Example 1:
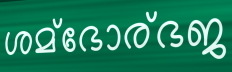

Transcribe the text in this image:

ശമ്ഭോര്ഭജ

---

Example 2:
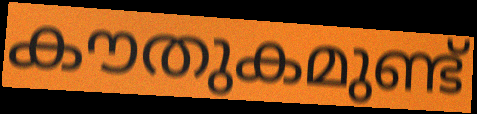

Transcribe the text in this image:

കൗതുകമുണ്ട്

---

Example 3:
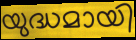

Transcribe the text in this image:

യുദ്ധമായി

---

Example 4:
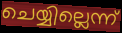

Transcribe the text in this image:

ചെയ്യില്ലെന്ന്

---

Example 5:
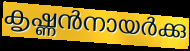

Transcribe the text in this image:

കൃഷ്ണൻനായർക്കു